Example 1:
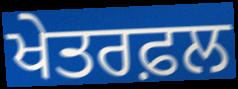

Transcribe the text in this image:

ਖੇਤਰਫ਼ਲ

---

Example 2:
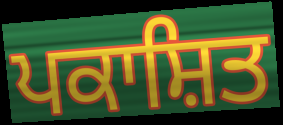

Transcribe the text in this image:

ਪਕਾਸ਼ਿਤ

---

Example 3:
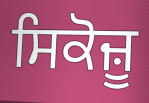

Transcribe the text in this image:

ਸਿਕੋਜ਼ੂ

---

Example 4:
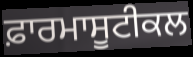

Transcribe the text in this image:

ਫ਼ਾਰਮਾਸੂਟੀਕਲ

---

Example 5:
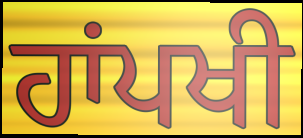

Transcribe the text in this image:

ਹਾਂਪਖੀ